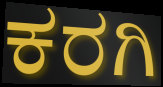
ಕರಗಿ